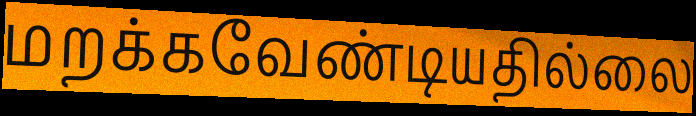
மறக்கவேண்டியதில்லை